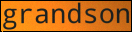
grandson